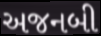
અજનબી